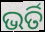
ଭର୍ତି